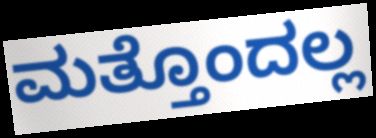
ಮತ್ತೊಂದಲ್ಲ